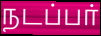
நடப்பர்